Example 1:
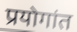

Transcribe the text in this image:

प्रयोगांत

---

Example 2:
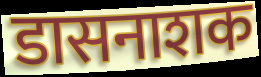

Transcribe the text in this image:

डासनाशक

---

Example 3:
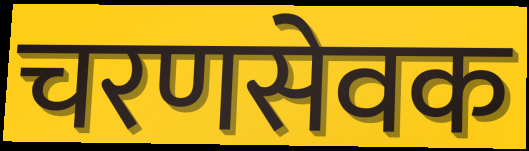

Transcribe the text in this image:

चरणसेवक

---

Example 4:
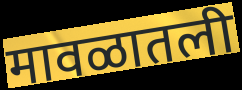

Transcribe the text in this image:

मावळातली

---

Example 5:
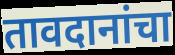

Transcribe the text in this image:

तावदानांचा